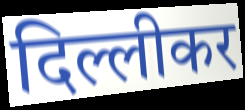
दिल्लीकर